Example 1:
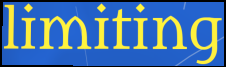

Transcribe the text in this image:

limiting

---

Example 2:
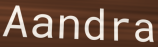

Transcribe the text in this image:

Aandra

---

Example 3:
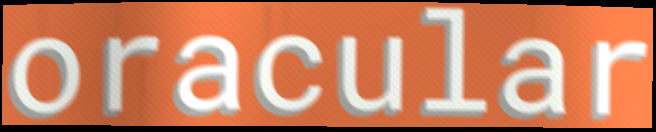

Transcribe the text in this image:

oracular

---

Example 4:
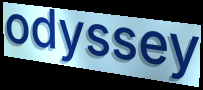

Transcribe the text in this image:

odyssey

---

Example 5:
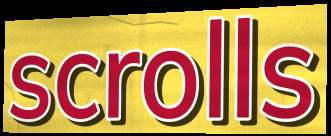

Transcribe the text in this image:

scrolls